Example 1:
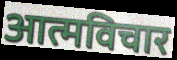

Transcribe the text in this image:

आत्मविचार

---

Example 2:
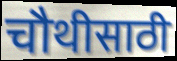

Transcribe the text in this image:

चौथीसाठी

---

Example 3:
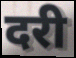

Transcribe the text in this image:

दरी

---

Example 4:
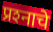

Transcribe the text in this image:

प्रश्‍नाचे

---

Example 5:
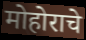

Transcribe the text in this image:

मोहोराचे